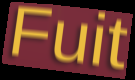
Fuit